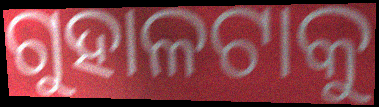
ଗୁହାଳଟାକୁ